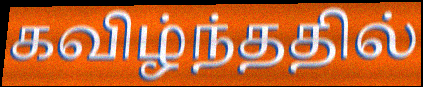
கவிழ்ந்ததில்